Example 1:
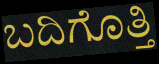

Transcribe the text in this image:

ಬದಿಗೊತ್ತಿ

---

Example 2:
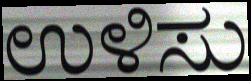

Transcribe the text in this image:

ಉಳಿಸು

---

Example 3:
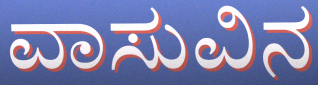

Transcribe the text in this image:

ವಾಸುವಿನ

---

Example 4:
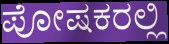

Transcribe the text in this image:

ಪೋಷಕರಲ್ಲಿ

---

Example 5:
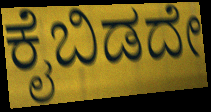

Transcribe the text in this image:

ಕೈಬಿಡದೇ